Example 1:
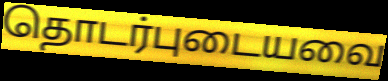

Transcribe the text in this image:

தொடர்புடையவை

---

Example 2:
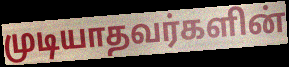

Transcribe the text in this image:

முடியாதவர்களின்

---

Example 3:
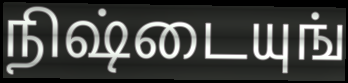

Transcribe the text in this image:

நிஷ்டையுங்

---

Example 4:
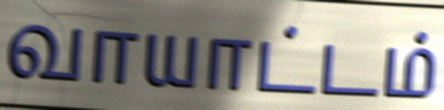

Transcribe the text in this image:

வாயாட்டம்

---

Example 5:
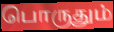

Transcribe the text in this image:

பொருதும்